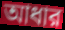
আধার